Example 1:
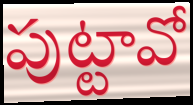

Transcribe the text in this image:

పుట్టావో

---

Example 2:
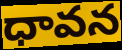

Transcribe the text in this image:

ధావన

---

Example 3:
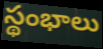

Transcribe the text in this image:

స్థంభాలు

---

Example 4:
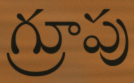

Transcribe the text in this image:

గ్రూపు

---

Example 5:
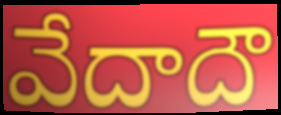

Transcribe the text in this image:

వేదాదౌ